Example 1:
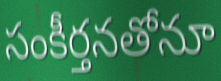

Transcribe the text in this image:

సంకీర్తనతోనూ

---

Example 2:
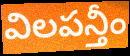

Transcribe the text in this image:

విలపన్తీం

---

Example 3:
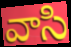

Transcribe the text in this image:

వాసి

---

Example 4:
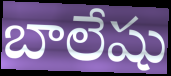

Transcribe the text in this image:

బాలేషు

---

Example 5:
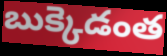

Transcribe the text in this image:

బుక్కెడంత